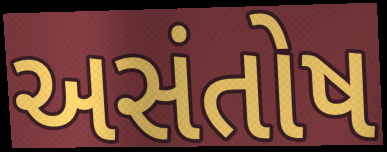
અસંતોષ